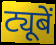
ट्यूबें